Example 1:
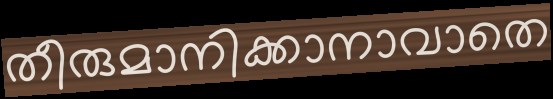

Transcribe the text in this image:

തീരുമാനിക്കാനാവാതെ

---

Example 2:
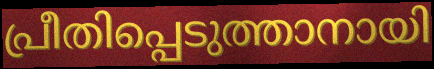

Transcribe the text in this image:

പ്രീതിപ്പെടുത്താനായി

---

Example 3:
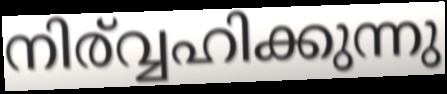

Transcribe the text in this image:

നിര്വ്വഹിക്കുന്നു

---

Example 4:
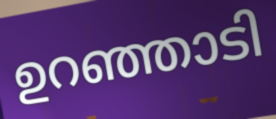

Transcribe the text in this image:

ഉറഞ്ഞാടി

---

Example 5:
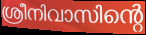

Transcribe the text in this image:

ശ്രീനിവാസിന്റെ